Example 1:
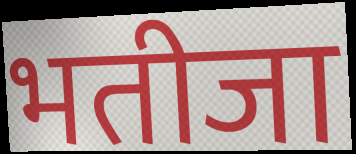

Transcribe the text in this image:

भतीजा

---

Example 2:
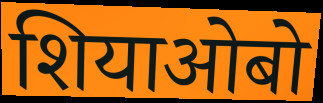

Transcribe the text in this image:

शियाओबो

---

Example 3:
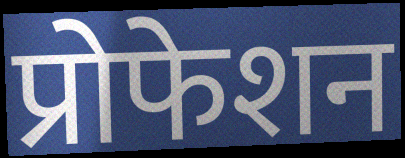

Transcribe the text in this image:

प्रोफेशन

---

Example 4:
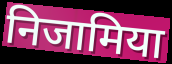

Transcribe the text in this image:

निजामिया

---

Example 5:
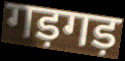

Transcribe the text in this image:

गड़गड़